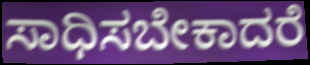
ಸಾಧಿಸಬೇಕಾದರೆ